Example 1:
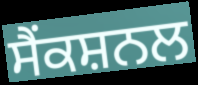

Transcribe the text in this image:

ਸੈਂਕਸ਼ਨਲ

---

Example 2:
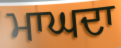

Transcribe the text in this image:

ਮਾਘਦਾ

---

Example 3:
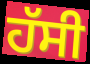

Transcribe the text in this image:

ਹੱਸੀ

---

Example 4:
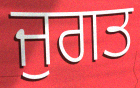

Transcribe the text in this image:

ਜੁਗਤ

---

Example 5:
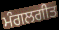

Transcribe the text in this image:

ਮੰਗਲਗੀਤ